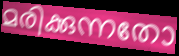
മരിക്കുന്നതോ